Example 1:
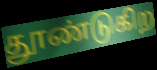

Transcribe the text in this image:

தூண்டுகிற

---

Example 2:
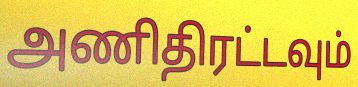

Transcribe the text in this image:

அணிதிரட்டவும்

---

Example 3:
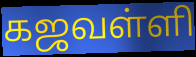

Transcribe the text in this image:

கஜவள்ளி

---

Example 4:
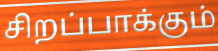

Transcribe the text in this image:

சிறப்பாக்கும்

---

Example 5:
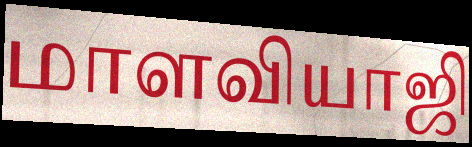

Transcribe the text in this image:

மாளவியாஜி